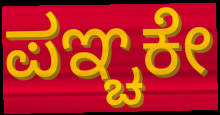
ಪಞ್ಚಕೇ